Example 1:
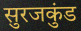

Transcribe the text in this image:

सुरजकुंड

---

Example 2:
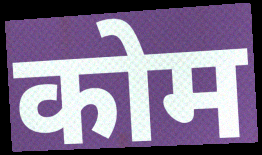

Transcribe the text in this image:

कोम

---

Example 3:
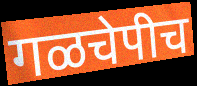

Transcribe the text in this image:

गळचेपीच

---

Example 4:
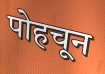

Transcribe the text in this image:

पोहचून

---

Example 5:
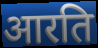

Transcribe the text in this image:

आरति